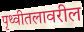
पृथ्वीतलावरील